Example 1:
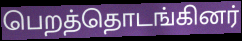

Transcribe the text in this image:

பெறத்தொடங்கினர்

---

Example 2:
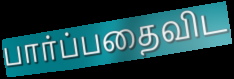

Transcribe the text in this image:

பார்ப்பதைவிட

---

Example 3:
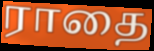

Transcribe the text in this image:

ராதை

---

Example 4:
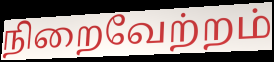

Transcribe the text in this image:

நிறைவேற்றம்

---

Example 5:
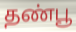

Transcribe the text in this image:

தண்பூ